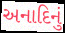
અનાદિનું